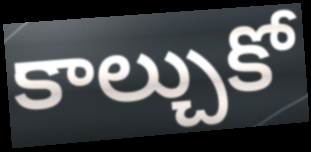
కాల్చుకో